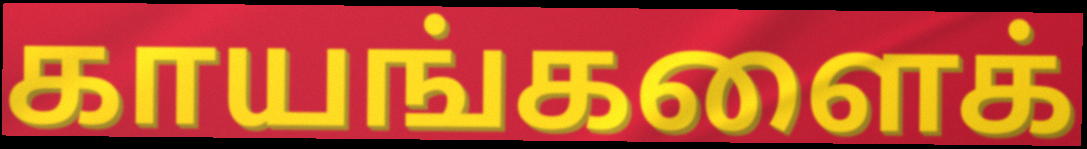
காயங்களைக்